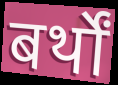
बर्थों